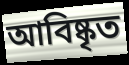
আবিষ্কৃত